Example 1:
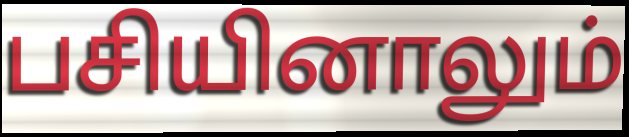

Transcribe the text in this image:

பசியினாலும்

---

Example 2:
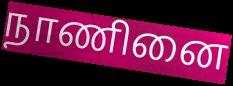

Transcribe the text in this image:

நாணினை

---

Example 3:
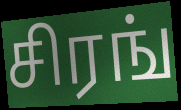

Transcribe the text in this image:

சிரங்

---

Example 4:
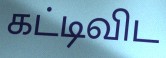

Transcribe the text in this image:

கட்டிவிட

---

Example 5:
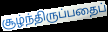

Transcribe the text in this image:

சூழ்ந்திருப்பதைப்